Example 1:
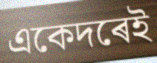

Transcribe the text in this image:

একেদৰেই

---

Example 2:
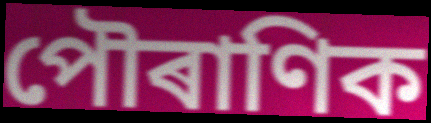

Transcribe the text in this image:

পৌৰাণিক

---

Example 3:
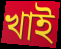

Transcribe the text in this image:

খাই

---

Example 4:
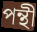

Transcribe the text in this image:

পন্থী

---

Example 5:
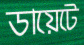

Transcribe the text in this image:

ডায়েটে